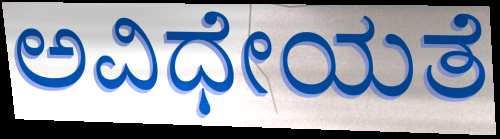
ಅವಿಧೇಯತೆ